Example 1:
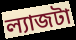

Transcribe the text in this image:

ল্যাজটা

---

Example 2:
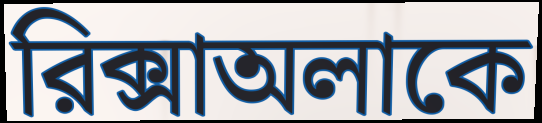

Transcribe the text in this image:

রিক্সাঅলাকে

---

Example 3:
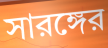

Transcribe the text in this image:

সারঙ্গের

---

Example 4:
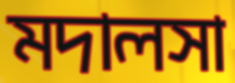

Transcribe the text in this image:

মদালসা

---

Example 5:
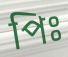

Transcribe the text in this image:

পিঃ